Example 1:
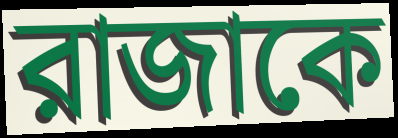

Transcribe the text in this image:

রাজাকে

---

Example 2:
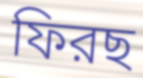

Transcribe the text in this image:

ফিরছ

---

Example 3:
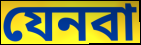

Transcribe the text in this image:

যেনবা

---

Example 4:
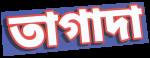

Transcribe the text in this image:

তাগাদা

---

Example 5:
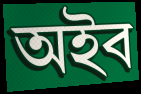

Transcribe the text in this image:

অইব